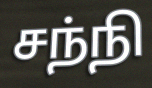
சந்நி